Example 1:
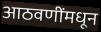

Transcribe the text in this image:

आठवणींमधून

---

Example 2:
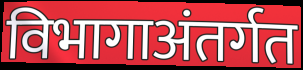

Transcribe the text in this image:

विभागाअंतर्गत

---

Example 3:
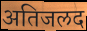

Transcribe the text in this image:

अतिजलद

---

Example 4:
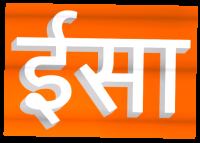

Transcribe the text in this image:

ईसा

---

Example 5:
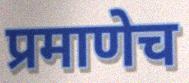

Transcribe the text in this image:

प्रमाणेच